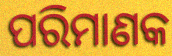
ପରିମାଣକ